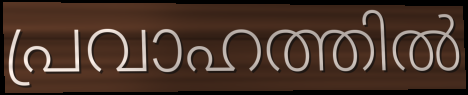
പ്രവാഹത്തിൽ